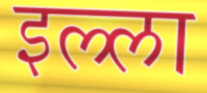
इल्ला